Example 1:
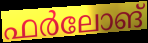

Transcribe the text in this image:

ഫർലോങ്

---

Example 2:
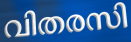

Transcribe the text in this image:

വിതരസി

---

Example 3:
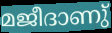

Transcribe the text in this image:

മജീദാണു്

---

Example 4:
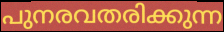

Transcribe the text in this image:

പുനരവതരിക്കുന്ന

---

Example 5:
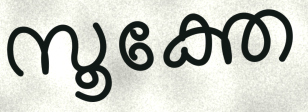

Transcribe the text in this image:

സൂക്തേ